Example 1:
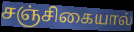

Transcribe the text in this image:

சஞ்சிகையால்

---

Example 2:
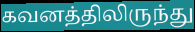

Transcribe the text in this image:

கவனத்திலிருந்து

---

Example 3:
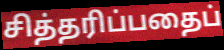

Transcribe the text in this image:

சித்தரிப்பதைப்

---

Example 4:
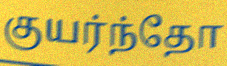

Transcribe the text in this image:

குயர்ந்தோ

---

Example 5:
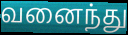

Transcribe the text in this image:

வனைந்து